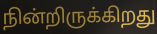
நின்றிருக்கிறது